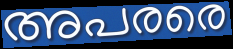
അപരരെ